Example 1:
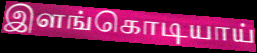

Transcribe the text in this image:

இளங்கொடியாய்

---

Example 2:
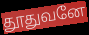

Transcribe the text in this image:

தூதுவனே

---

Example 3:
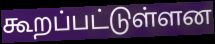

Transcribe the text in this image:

கூறப்பட்டுள்ளன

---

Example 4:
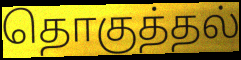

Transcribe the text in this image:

தொகுத்தல்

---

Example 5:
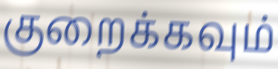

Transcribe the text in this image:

குறைக்கவும்